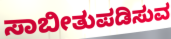
ಸಾಬೀತುಪಡಿಸುವ